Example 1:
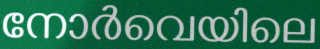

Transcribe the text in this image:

നോർവെയിലെ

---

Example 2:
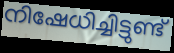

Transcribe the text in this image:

നിഷേധിച്ചിട്ടുണ്ട്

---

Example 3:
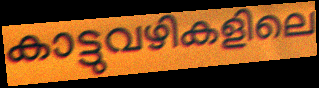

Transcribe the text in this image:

കാട്ടുവഴികളിലെ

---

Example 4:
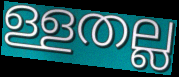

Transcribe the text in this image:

ള്ളതല്ല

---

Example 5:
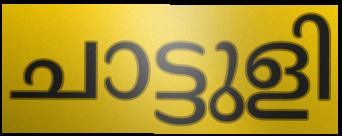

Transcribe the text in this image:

ചാട്ടുളി